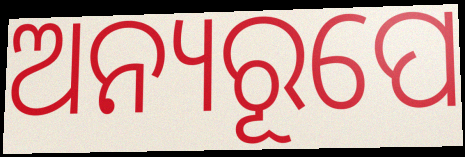
ଅନ୍ୟରୂପେ